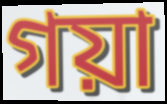
গয়া